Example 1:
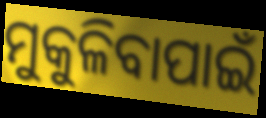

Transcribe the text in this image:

ମୁକୁଳିବାପାଇଁ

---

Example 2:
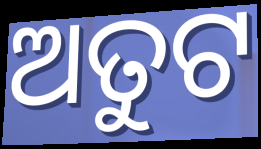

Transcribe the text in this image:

ଅତୁଟ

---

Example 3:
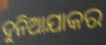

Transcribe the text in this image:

ଦୁନିଆଯାକର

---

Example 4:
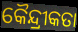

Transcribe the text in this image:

କୈନ୍ଦ୍ରୀକତା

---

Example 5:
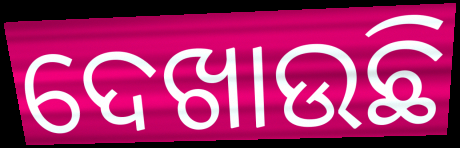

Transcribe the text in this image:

ଦେଖାଉଛି